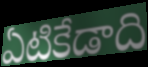
ఏటికేడాది